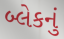
બ્લેકનું